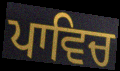
ਪਾਵਿਚ